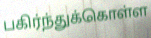
பகிர்ந்துக்கொள்ள